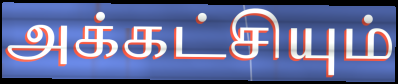
அக்கட்சியும்